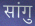
सांगु